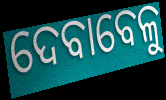
ଦେବାବେଳୁ